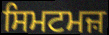
ਸਿਮਟਮਜ਼